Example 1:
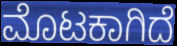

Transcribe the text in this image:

ಮೊಟಕಾಗಿದೆ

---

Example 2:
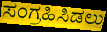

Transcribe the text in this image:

ಸಂಗ್ರಹಿಸಿಡಲು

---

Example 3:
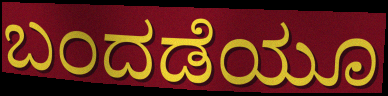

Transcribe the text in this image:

ಬಂದಡೆಯೂ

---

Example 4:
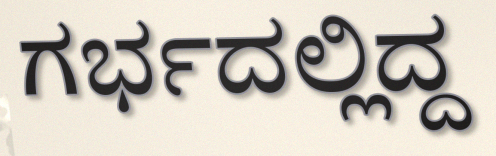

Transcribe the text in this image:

ಗರ್ಭದಲ್ಲಿದ್ದ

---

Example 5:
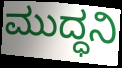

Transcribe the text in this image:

ಮುದ್ಧನಿ